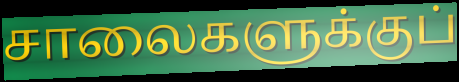
சாலைகளுக்குப்